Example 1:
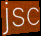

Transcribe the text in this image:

jsc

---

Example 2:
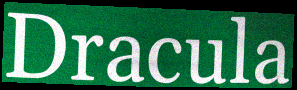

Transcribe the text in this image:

Dracula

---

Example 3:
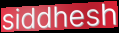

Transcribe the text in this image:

siddhesh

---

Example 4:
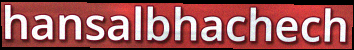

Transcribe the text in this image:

hansalbhachech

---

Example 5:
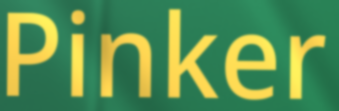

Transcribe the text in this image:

Pinker